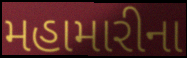
મહામારીના